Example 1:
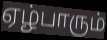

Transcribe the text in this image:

ஏழ்பாரும்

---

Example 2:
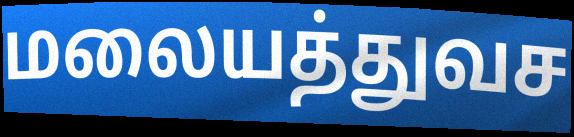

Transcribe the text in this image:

மலையத்துவச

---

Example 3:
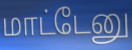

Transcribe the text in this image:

மாட்டேனு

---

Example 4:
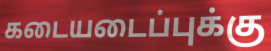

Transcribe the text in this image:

கடையடைப்புக்கு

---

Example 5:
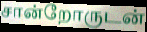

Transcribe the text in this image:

சான்றோருடன்